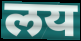
लय